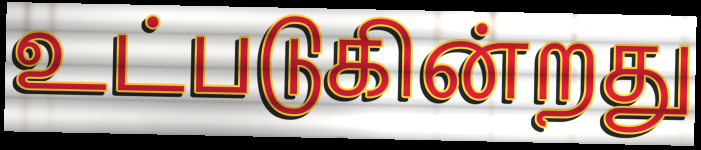
உட்படுகின்றது